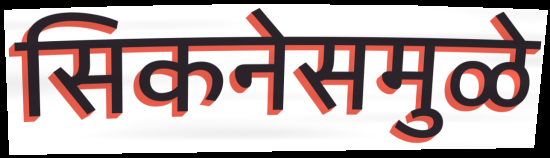
सिकनेसमुळे